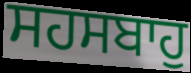
ਸਹਸਬਾਹੁ